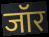
जॉर